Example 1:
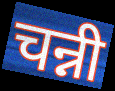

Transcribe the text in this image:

चन्नी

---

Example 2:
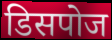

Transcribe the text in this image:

डिसपोज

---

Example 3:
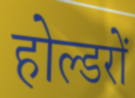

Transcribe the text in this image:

होल्डरों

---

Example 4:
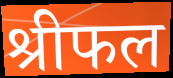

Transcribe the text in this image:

श्रीफल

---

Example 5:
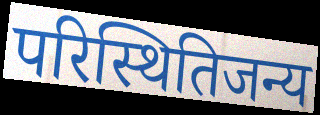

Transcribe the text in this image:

परिस्थितिजन्य